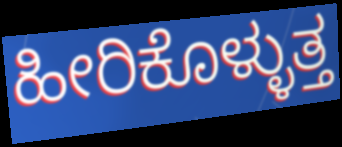
ಹೀರಿಕೊಳ್ಳುತ್ತ